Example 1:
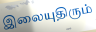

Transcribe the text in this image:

இலையுதிரும்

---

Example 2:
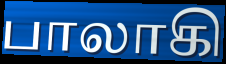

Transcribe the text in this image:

பாலாகி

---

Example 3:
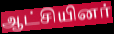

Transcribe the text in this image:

ஆட்சியினர்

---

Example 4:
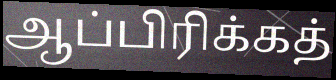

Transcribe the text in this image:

ஆப்பிரிக்கத்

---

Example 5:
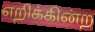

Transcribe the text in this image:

எறிக்கின்ற